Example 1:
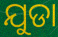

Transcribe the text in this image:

ଯୁଡା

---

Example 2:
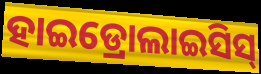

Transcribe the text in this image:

ହାଇଡ୍ରୋଲାଇସିସ୍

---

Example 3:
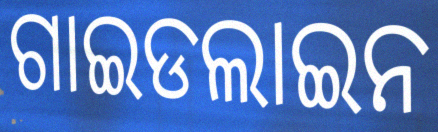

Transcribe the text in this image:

ଗାଇଡଲାଇନ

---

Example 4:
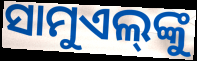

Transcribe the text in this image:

ସାମୁଏଲ୍‌ଙ୍କୁ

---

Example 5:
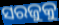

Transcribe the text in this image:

ସରଜୁକୁ